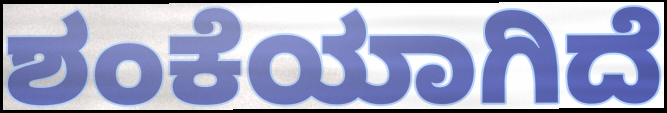
ಶಂಕೆಯಾಗಿದೆ